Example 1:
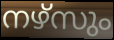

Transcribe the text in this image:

നഴ്സും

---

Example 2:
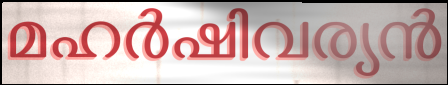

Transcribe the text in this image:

മഹർഷിവര്യൻ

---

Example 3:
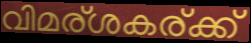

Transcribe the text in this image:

വിമര്ശകര്ക്ക്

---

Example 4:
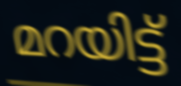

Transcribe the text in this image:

മറയിട്ട്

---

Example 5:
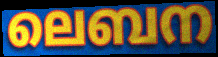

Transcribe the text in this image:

ലെബന